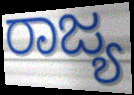
ರಾಜ್ಯ